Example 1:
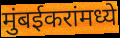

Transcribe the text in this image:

मुंबईकरांमध्ये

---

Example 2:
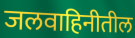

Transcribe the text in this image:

जलवाहिनीतील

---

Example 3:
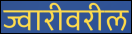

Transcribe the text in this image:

ज्वारीवरील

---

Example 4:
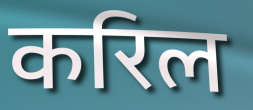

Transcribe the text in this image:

करिल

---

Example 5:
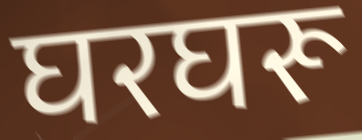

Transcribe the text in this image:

घरघरू